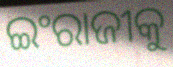
ଇଂରାଜୀକୁ